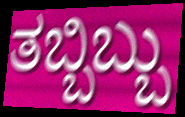
ತಬ್ಬಿಬ್ಬು